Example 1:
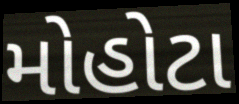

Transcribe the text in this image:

મોહોટા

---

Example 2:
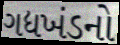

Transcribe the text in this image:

ગદ્યખંડનો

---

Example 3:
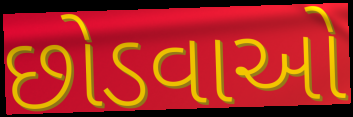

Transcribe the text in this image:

છોડવાઓ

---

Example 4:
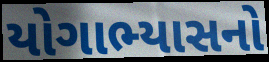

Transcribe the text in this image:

યોગાભ્યાસનો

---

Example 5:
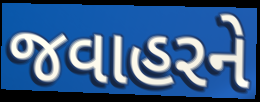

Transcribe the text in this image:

જવાહરને